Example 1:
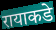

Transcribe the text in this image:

रायाकडे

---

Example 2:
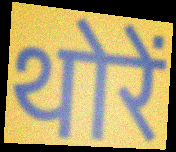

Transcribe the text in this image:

थोरें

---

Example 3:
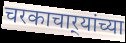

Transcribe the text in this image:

चरकाचार्यांच्या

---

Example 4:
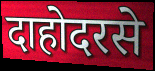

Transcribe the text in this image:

दाहोदरसे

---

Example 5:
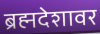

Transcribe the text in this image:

ब्रह्मदेशावर